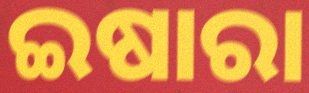
ଇଷାରା